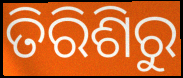
ତିରିଶିରୁ